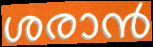
ശരാൻ